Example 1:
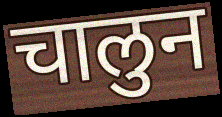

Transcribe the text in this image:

चालुन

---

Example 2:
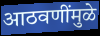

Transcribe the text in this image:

आठवणींमुळे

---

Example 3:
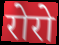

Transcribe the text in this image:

रोरो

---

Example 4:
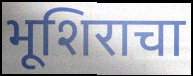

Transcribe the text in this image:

भूशिराचा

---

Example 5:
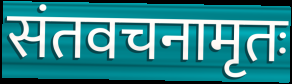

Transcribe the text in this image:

संतवचनामृतः